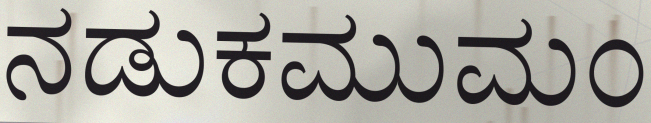
ನಡುಕಮುಮಂ